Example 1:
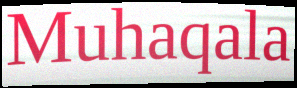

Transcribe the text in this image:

Muhaqala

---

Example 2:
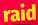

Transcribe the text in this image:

raid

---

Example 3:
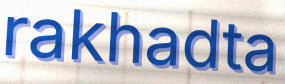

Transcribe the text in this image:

rakhadta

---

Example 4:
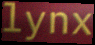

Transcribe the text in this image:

lynx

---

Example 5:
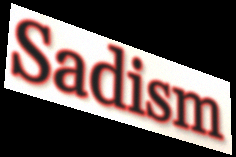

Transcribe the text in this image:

Sadism